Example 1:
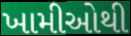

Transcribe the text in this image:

ખામીઓથી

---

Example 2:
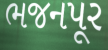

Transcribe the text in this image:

ભજનપૂર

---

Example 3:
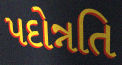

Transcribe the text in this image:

પદોન્નતિ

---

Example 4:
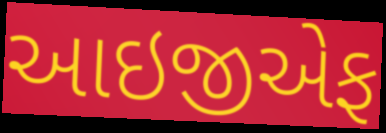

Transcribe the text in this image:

આઇજીએફ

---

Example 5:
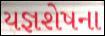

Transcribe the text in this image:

યજ્ઞશેષના